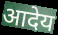
आदेय